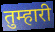
तुम्‍हारी